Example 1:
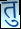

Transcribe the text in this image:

तु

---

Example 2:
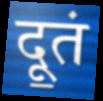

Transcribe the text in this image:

दू॒तं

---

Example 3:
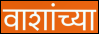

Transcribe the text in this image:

वाशांच्या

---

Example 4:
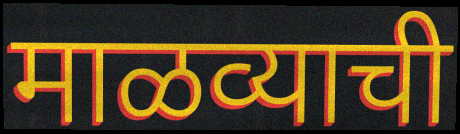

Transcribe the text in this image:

माळव्याची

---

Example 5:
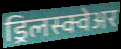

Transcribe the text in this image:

ड्रिलस्क्वेअर